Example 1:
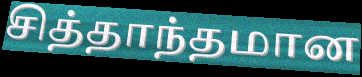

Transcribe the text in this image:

சித்தாந்தமான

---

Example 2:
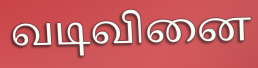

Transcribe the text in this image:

வடிவினை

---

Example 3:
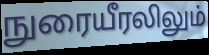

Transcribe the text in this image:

நுரையீரலிலும்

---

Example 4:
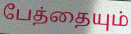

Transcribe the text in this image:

பேத்தையும்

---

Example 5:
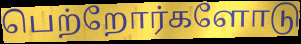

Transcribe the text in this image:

பெற்றோர்களோடு